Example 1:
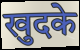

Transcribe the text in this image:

खुदके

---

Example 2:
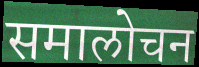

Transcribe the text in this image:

समालोचन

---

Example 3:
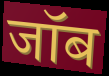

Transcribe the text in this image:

जॉब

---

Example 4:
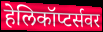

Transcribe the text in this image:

हेलिकॉप्टर्सवर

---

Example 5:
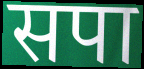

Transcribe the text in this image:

सपा